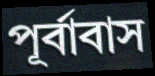
পূর্বাবাস